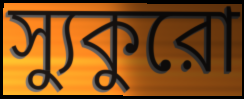
স্যুকুরো